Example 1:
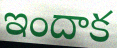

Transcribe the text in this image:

ఇందాక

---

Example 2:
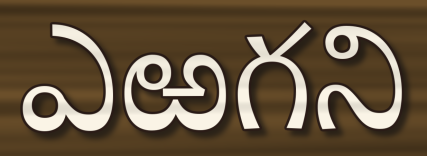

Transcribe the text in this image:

ఎఱగని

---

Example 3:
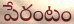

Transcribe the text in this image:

పేరంటం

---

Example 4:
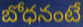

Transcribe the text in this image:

బోధనంటే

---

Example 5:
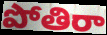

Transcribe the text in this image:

పోతిరా